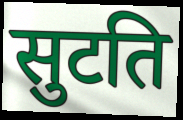
सुटति